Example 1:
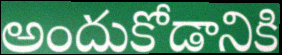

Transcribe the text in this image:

అందుకోడానికి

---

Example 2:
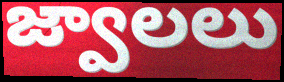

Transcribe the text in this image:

జ్వాలలు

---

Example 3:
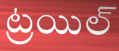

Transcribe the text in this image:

ట్రయిల్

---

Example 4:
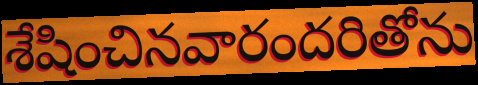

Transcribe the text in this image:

శేషించినవారందరితోను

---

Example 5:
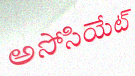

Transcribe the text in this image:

అసోసియేట్